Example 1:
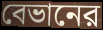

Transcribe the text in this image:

বেভানের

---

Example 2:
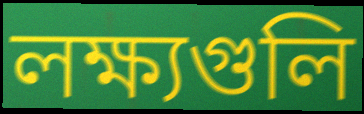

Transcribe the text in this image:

লক্ষ্যগুলি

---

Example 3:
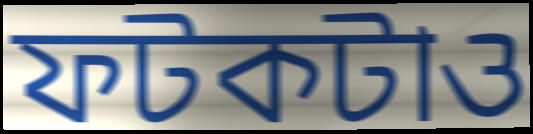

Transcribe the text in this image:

ফটকটাও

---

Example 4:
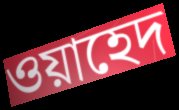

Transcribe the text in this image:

ওয়াহেদ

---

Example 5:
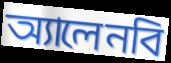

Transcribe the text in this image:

অ্যালেনবি